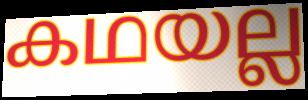
കഥയല്ല